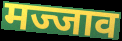
मज्जाव